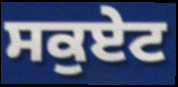
ਸਕੁਏਟ